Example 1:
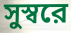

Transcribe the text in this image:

সুস্বরে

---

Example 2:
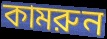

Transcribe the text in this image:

কামরুন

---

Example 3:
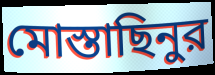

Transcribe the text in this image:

মোস্তাছিনুর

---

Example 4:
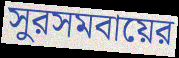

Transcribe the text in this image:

সুরসমবায়ের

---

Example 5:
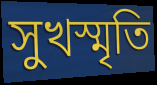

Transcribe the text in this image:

সুখস্মৃতি